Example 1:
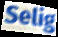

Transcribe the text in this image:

Selig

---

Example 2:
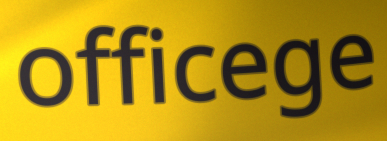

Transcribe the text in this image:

officege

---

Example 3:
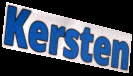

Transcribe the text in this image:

Kersten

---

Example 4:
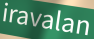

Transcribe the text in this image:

iravalan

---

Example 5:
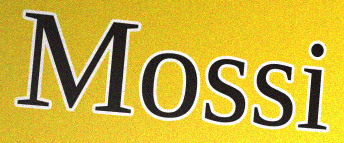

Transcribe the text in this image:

Mossi